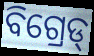
ବିଗ୍ରେଡ୍